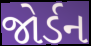
જોર્ડન